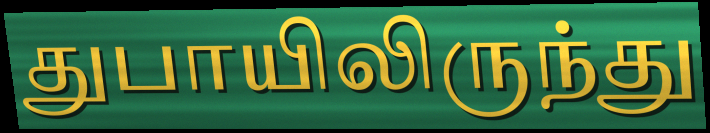
துபாயிலிருந்து